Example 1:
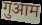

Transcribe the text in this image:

गुआम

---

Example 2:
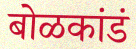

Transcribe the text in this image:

बोळकांडं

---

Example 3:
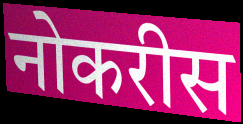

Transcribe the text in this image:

नोकरीस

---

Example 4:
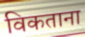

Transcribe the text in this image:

विकताना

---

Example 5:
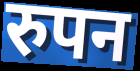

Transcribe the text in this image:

रुपन